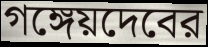
গঙ্গেয়দেবের